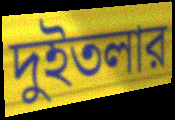
দুইতলার